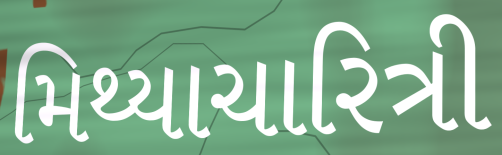
મિથ્યાચારિત્રી